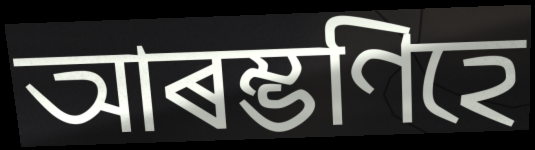
আৰম্ভণিহে